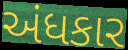
અંધકાર